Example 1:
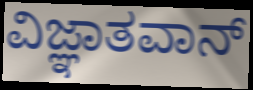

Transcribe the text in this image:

ವಿಜ್ಞಾತವಾನ್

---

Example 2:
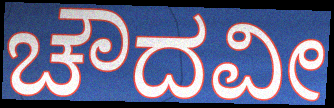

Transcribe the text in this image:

ಚೌದವೀ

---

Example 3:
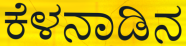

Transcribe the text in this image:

ಕೆಳನಾಡಿನ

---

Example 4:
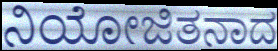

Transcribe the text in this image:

ನಿಯೋಜಿತನಾದ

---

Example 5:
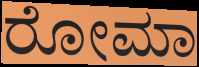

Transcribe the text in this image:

ರೋಮಾ